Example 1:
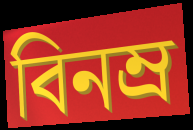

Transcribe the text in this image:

বিনম্র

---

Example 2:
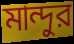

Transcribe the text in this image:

মান্দুর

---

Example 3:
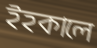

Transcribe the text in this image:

ইহকালে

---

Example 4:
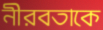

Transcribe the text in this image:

নীরবতাকে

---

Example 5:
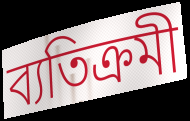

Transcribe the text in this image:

ব্যতিক্রমী